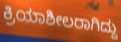
ಕ್ರಿಯಾಶೀಲರಾಗಿದ್ದು